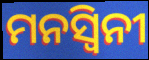
ମନସ୍ୱିନୀ